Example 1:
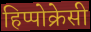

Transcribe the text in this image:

हिप्पोक्रेसी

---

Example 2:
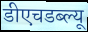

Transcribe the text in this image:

डीएचडब्ल्यू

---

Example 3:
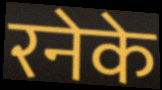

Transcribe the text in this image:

रनेके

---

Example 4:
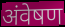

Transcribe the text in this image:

अंवेषण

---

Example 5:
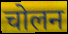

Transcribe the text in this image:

चोलन